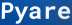
Pyare